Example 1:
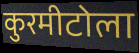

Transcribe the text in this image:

कुरमीटोला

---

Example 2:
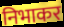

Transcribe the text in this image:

निभाकर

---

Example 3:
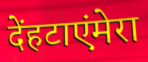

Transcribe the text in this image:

देंहटाएंमेरा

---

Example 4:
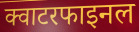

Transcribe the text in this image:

क्वाटरफाइनल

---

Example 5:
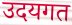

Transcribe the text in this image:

उदयगत